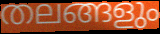
തലങ്ങളും